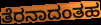
ತೆರನಾದಂತಹ